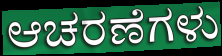
ಆಚರಣೆಗಳು